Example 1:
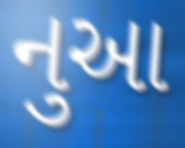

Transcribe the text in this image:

નુઆ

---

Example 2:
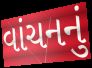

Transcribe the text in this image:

વાંચનનું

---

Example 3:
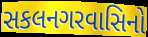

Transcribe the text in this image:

સકલનગરવાસિનો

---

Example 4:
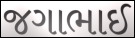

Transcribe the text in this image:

જગાભાઈ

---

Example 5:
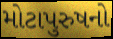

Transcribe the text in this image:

મોટાપુરુષનો